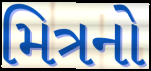
મિત્રનો